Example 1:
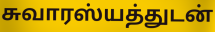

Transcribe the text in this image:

சுவாரஸ்யத்துடன்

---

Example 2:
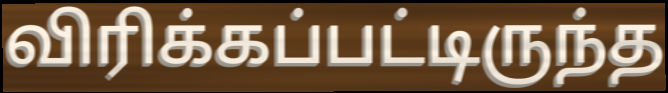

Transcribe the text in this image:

விரிக்கப்பட்டிருந்த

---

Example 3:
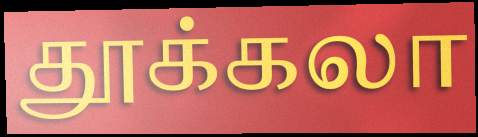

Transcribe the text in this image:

தூக்கலா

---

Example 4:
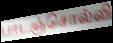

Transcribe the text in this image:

பாடஞ்சொல்லி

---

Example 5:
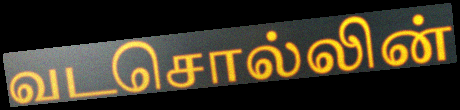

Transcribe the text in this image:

வடசொல்லின்